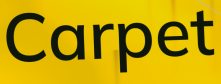
Carpet